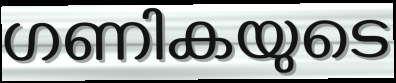
ഗണികയുടെ